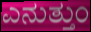
ಎನುತ್ತುಂ